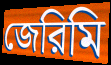
জেরিমি